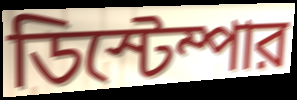
ডিস্টেম্পার